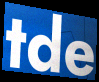
tde